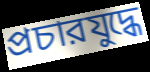
প্রচারযুদ্ধে